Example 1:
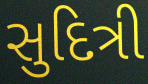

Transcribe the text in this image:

સુદિત્રી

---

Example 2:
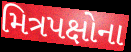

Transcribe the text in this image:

મિત્રપક્ષોના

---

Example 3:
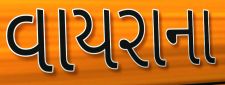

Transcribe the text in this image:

વાયરાના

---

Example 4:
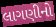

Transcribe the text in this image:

લાગણીનો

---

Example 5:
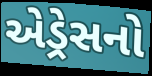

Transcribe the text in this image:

એડ્રેસનો